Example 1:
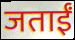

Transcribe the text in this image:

जताईं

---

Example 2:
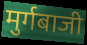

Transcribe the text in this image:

मुर्गबाजी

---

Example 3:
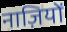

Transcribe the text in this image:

नाज़ियों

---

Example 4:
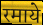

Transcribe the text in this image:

रमाये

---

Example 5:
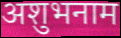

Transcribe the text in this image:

अशुभनाम